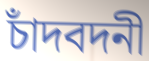
চাঁদবদনী